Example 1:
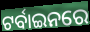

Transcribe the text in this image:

ଟର୍ବାଇନରେ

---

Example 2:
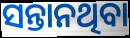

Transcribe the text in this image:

ସନ୍ତାନଥିବା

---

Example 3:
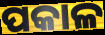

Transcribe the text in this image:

ପକାଳ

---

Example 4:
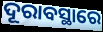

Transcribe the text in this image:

ଦୂରାବସ୍ଥାରେ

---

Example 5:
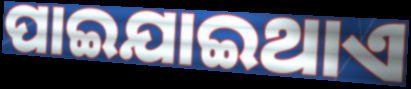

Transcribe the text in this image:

ପାଇଯାଇଥାଏ